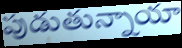
పుడుతున్నాయా